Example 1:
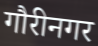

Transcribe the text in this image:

गौरीनगर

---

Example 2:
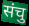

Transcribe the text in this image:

संचु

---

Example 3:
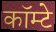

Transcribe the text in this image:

कॉम्टे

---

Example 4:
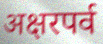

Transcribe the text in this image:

अक्षरपर्व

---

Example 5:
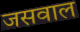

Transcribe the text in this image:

जसवाल